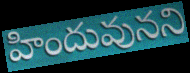
హిందువునని